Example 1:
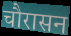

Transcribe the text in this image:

चौरासन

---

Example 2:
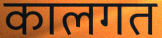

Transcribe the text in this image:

कालगत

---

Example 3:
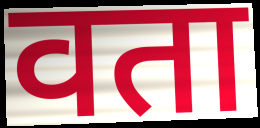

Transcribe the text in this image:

वता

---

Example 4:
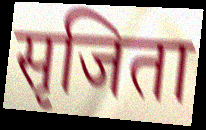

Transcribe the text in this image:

सृजिता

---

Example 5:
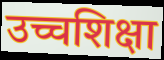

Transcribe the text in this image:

उच्‍चशिक्षा